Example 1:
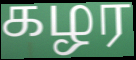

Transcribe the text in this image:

கழர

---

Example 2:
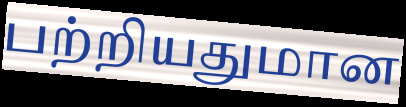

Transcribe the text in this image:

பற்றியதுமான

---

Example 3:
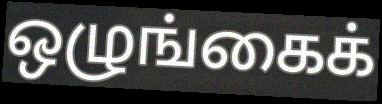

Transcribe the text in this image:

ஒழுங்கைக்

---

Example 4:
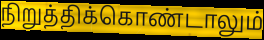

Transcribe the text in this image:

நிறுத்திக்கொண்டாலும்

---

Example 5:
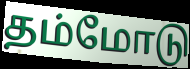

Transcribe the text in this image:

தம்மோடு